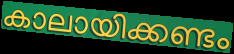
കാലായിക്കണ്ടം